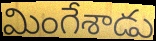
మింగేశాడు